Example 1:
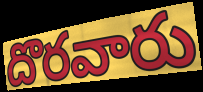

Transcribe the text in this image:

దొరవారు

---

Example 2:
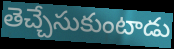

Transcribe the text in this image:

తెచ్చేసుకుంటాడు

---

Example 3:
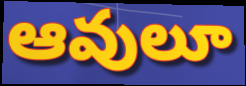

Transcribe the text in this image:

ఆవులూ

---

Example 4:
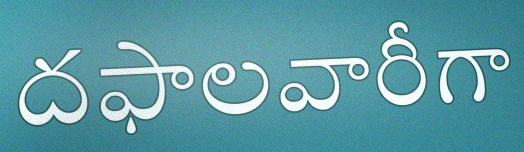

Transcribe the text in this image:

దఫాలవారీగా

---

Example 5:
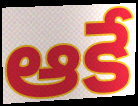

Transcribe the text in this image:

ఆకే